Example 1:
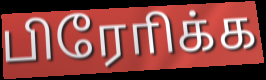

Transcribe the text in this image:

பிரேரிக்க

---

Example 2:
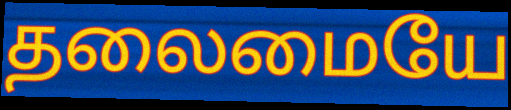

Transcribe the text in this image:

தலைமையே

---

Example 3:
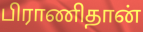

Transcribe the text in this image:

பிராணிதான்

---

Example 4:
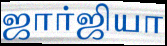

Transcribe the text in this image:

ஜார்ஜியா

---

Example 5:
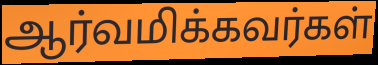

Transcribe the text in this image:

ஆர்வமிக்கவர்கள்